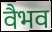
वैभव